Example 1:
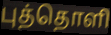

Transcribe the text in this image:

புத்தொளி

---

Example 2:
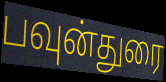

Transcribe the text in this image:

பவுன்துரை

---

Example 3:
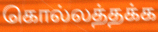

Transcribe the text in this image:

கொல்லத்தக்க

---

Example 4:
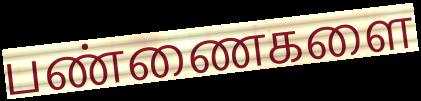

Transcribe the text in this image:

பண்ணைகளை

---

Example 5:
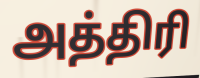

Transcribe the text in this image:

அத்திரி